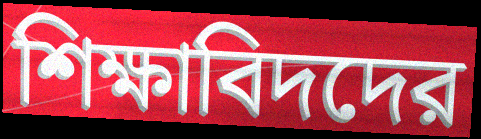
শিক্ষাবিদদের